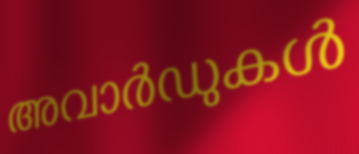
അവാർഡുകൾ